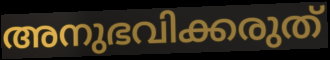
അനുഭവിക്കരുത്